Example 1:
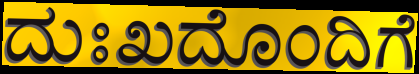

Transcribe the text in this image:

ದುಃಖದೊಂದಿಗೆ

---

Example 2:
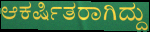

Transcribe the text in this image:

ಆಕರ್ಷಿತರಾಗಿದ್ದು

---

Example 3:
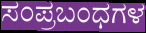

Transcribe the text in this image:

ಸಂಪ್ರಬಂಧಗಳ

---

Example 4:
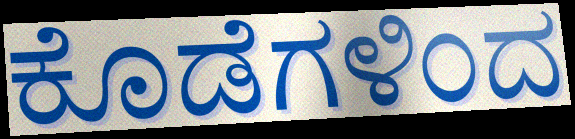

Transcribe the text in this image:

ಕೊಡೆಗಳಿಂದ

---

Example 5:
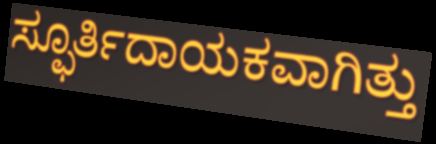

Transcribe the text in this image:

ಸ್ಫೂರ್ತಿದಾಯಕವಾಗಿತ್ತು